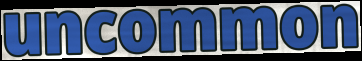
uncommon